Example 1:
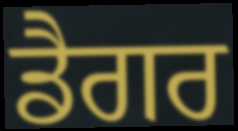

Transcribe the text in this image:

ਡੈਗਰ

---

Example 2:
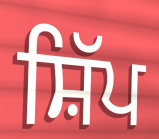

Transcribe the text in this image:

ਸ਼ਿੱਪ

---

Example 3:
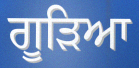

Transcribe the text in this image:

ਗੂੜਿਆ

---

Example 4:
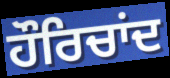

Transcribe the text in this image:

ਹੌਰਿਚਾਂਦ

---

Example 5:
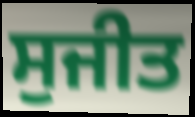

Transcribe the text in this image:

ਸੁਜੀਤ